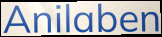
Anilaben